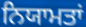
ਨਿਯਾਮਤਾਂ